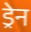
ड्रेन